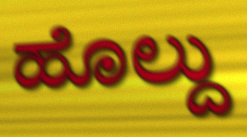
ಹೊಲ್ದು